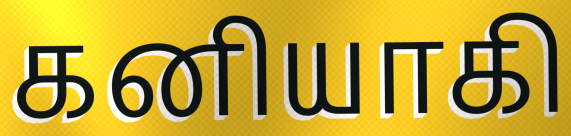
கனியாகி